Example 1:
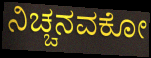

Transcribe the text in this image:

ನಿಚ್ಚನವಕೋ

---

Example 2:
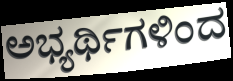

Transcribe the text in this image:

ಅಭ್ಯರ್ಥಿಗಳಿಂದ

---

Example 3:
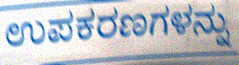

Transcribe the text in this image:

ಉಪಕರಣಗಳನ್ನು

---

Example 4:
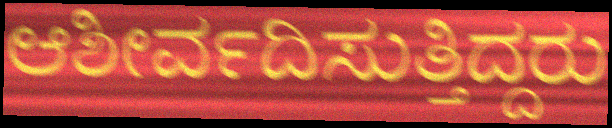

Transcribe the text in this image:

ಆಶೀರ್ವದಿಸುತ್ತಿದ್ದರು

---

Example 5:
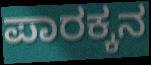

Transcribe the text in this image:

ಪಾರಕ್ಕನ